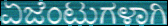
ಏಜೆಂಟುಗಳಾಗಿ